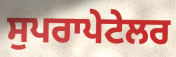
ਸੁਪਰਾਪੇਟੇਲਰ